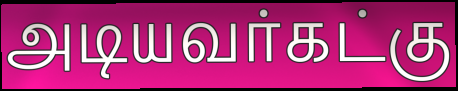
அடியவர்கட்கு